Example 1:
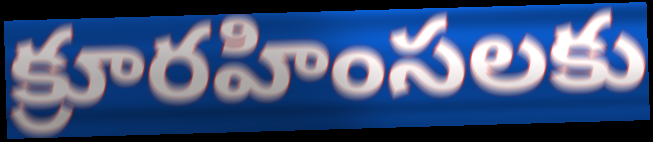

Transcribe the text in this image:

క్రూరహింసలకు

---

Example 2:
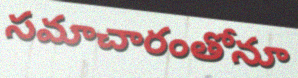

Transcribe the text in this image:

సమాచారంతోనూ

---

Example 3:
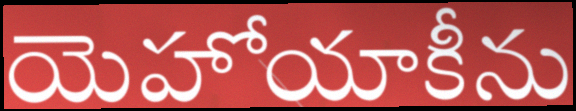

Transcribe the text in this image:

యెహోయాకీను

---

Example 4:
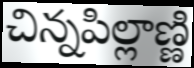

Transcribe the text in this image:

చిన్నపిల్లాణ్ణి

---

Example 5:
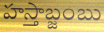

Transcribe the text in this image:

హస్తాబ్జంబు